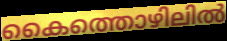
കൈത്തൊഴിലിൽ